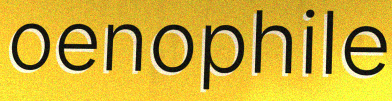
oenophile